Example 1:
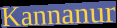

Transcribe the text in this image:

Kannanur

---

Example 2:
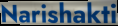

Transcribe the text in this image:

Narishakti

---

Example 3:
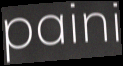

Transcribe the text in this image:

paini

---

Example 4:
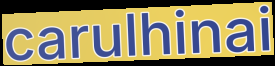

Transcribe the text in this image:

carulhinai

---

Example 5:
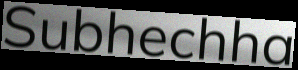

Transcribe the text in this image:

Subhechha